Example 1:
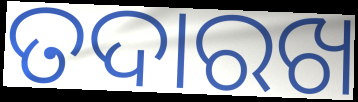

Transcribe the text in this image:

ତଦାରଖ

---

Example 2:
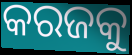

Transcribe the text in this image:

କରଜକୁ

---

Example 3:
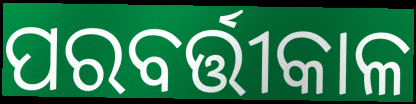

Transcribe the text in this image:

ପରବର୍ତ୍ତୀକାଳ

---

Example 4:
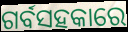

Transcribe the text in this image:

ଗର୍ବସହକାରେ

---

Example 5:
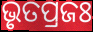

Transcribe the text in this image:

ଭୃତପ୍ରଜଃ